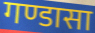
गण्डासा